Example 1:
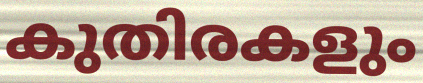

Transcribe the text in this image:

കുതിരകളും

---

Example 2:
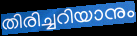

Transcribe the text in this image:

തിരിച്ചറിയാനും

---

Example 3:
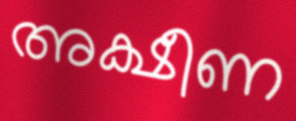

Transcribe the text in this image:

അക്ഷീണ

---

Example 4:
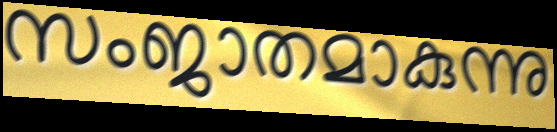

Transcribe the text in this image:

സംജാതമാകുന്നു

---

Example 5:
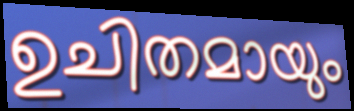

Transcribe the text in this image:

ഉചിതമായും